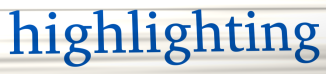
highlighting